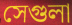
সেগুলা